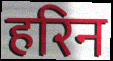
हरिन